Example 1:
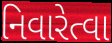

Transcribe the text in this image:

નિવારેત્વા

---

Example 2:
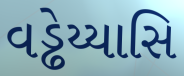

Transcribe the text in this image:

વડ્ઢેય્યાસિ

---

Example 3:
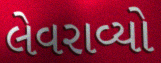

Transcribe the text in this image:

લેવરાવ્યો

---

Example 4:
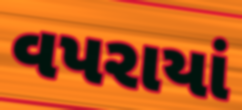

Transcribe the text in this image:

વપરાયાં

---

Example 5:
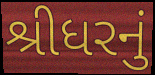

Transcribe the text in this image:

શ્રીધરનું